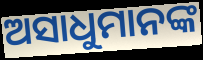
ଅସାଧୁମାନଙ୍କ